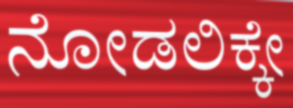
ನೋಡಲಿಕ್ಕೇ